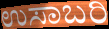
ಉಸಾಬರಿ